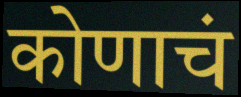
कोणाचं